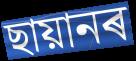
ছায়ানৰ